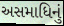
અસમાધિનું